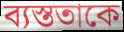
ব্যস্ততাকে